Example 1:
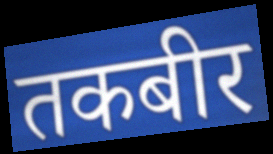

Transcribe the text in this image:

तकबीर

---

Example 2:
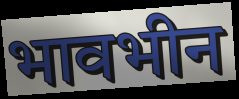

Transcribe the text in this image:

भावभीन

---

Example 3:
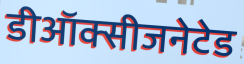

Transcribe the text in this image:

डीऑक्सीजनेटेड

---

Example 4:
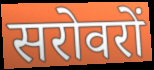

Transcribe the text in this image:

सरोवरों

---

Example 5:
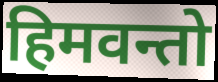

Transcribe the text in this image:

हिमवन्तो